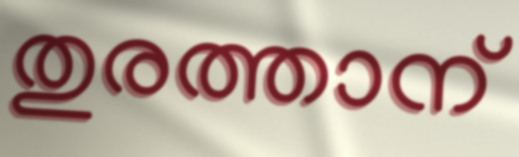
തുരത്താന്